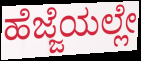
ಹೆಜ್ಜೆಯಲ್ಲೇ